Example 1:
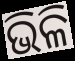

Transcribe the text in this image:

ଭିଳି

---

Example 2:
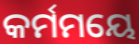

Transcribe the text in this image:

କର୍ମମୟେ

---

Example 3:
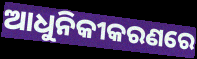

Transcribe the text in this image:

ଆଧୁନିକୀକରଣରେ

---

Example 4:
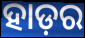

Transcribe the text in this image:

ହାଡ଼ର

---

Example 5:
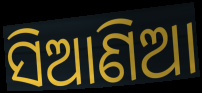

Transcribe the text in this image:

ସିଆଣିଆ